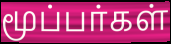
மூப்பர்கள்